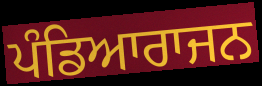
ਪੰਡਿਆਰਾਜਨ